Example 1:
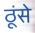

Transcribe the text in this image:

ठूंसे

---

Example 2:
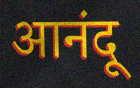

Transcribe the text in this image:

आनंदू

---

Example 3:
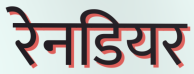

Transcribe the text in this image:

रेनडियर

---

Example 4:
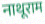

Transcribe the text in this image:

नाथूराम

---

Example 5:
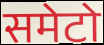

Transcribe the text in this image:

समेटो